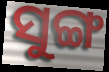
ସୁଙ୍ଗ